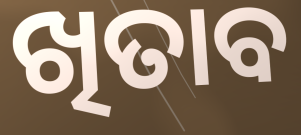
ଖିତାବ